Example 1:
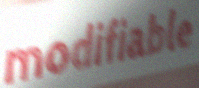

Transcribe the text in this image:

modifiable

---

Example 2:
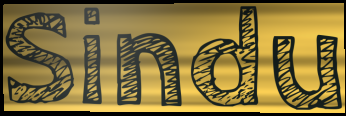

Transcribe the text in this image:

Sindu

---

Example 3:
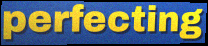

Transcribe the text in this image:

perfecting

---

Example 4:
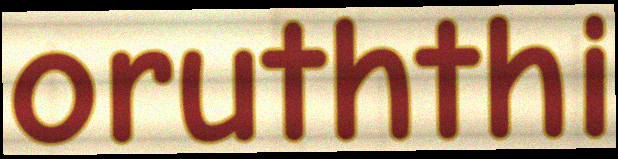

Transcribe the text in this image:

oruththi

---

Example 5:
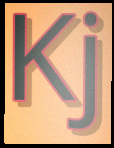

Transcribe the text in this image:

Kj